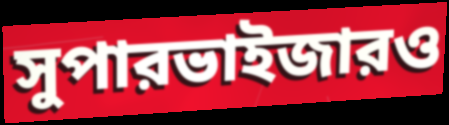
সুপারভাইজারও